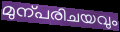
മുന്പരിചയവും